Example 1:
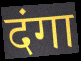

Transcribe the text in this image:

दंगा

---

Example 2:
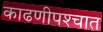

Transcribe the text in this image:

काढणीपश्‍चात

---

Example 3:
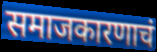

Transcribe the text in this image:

समाजकारणाचं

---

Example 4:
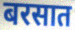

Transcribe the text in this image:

बरसात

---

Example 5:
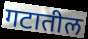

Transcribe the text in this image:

गटातील